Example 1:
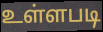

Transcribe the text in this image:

உள்ளபடி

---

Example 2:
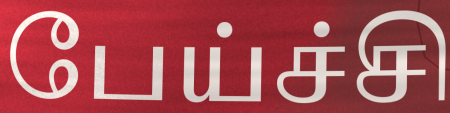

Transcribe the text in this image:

பேய்ச்சி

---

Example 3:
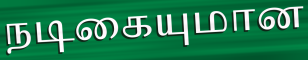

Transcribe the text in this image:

நடிகையுமான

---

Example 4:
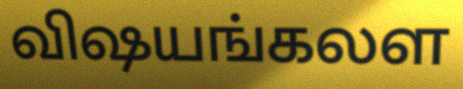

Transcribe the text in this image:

விஷயங்கலள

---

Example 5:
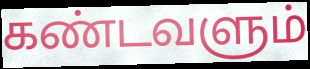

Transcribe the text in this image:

கண்டவளும்